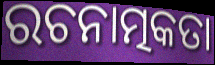
ରଚନାତ୍ମକତା